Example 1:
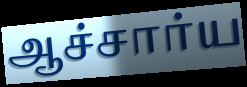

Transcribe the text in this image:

ஆச்சார்ய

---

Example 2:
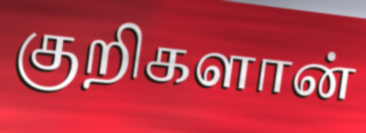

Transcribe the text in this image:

குறிகளான்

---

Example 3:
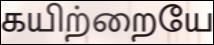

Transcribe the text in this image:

கயிற்றையே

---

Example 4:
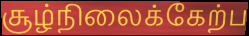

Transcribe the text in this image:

சூழ்நிலைக்கேற்ப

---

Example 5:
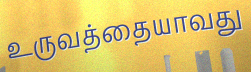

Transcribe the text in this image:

உருவத்தையாவது